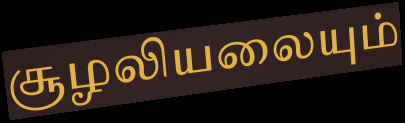
சூழலியலையும்